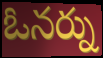
ఓనర్ను